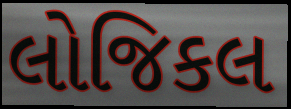
લોજિકલ